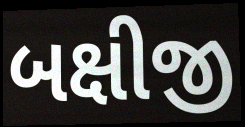
બક્ષીજી